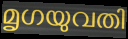
മൃഗയുവതി